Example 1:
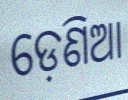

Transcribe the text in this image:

ଡ଼େଣିଆ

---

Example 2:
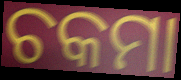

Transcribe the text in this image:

ଚକମା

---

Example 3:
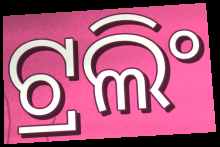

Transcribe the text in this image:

ଟ୍ରଲିଂ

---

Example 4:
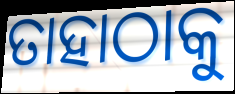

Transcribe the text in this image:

ତାହାଠାକୁ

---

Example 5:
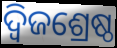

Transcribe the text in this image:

ଦ୍ୱିଜଶ୍ରେଷ୍ଠ